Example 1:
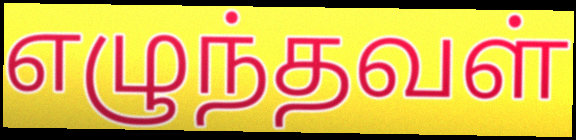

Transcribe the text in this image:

எழுந்தவள்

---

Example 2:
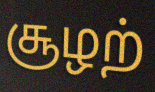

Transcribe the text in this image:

சூழற்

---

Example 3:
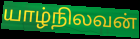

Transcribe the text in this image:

யாழ்நிலவன்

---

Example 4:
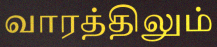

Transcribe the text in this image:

வாரத்திலும்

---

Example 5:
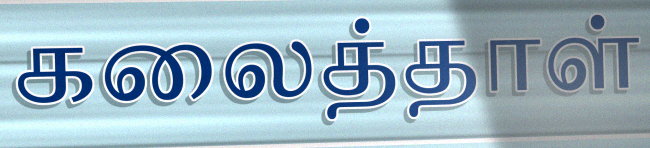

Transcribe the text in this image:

கலைத்தாள்